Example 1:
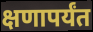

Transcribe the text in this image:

क्षणापर्यंत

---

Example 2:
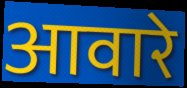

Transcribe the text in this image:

आवारे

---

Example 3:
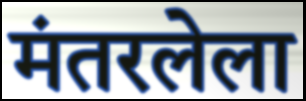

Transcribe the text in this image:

मंतरलेला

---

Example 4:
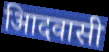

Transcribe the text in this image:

आिदवासी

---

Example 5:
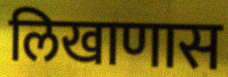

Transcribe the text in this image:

लिखाणास